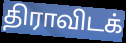
திராவிடக்